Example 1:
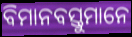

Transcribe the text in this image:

ବିମାନବସ୍ତୁମାନେ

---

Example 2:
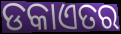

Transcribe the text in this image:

ଡକାଏତର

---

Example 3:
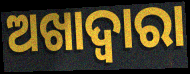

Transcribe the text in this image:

ଅଖାଦ୍ୱାରା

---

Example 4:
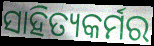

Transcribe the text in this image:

ସାହିତ୍ୟକର୍ମର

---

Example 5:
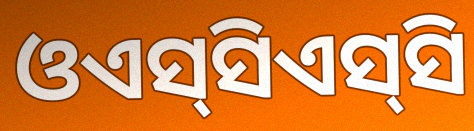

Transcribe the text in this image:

ଓଏସ୍‌ସିଏସ୍‌ସି